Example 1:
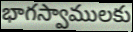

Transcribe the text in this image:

భాగస్వాములకు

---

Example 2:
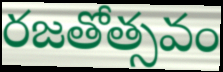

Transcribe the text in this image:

రజతోత్సవం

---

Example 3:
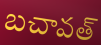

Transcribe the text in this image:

బచావత్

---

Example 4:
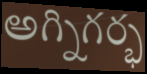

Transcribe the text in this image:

అగ్నిగర్భ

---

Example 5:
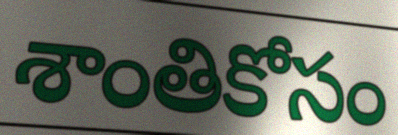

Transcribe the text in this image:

శాంతికోసం